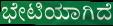
ಭೇಟಿಯಾಗಿದೆ